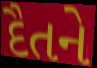
દૈતને